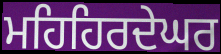
ਮਹਿਹਿਰਦੇਘਰ